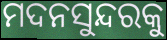
ମଦନସୁନ୍ଦରକୁ